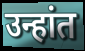
उन्हांत